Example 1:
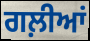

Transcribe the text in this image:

ਗਲ਼ੀਆਂ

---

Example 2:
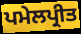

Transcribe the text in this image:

ਪਮੇਲਪ੍ਰੀਤ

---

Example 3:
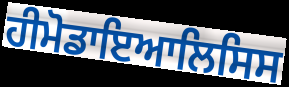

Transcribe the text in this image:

ਹੀਮੋਡਾਇਆਲਿਸਿਸ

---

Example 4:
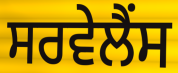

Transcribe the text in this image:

ਸਰਵੇਲੈਂਸ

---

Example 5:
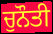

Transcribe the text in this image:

ਚੁਨੌਤੀ